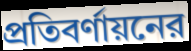
প্রতিবর্ণায়নের